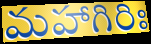
మహాగిరిః